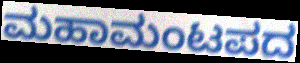
ಮಹಾಮಂಟಪದ